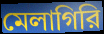
মেলাগিরি